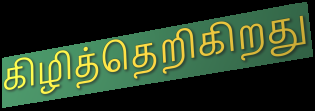
கிழித்தெறிகிறது